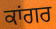
ਕਾਂਗਰ